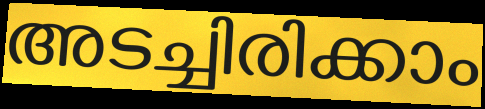
അടച്ചിരിക്കാം